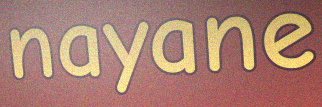
nayane